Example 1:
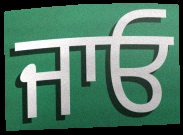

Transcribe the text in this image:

ਜਾਓ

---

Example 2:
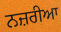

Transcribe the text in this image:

ਨਜ਼ਰੀਆ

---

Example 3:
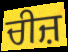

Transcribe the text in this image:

ਚੀਜ਼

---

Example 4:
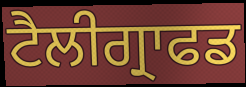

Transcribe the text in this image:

ਟੈਲੀਗ੍ਰਾਫਡ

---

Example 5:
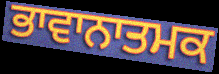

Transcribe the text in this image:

ਭਾਵਾਨਾਤਮਕ